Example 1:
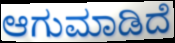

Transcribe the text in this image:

ಆಗುಮಾಡಿದೆ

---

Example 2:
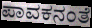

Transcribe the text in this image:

ಪಾವಕನಂತೆ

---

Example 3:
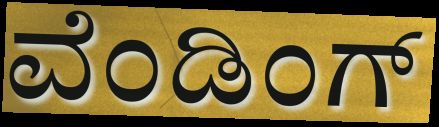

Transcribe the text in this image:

ವೆಂಡಿಂಗ್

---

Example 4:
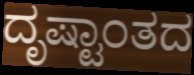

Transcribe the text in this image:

ದೃಷ್ಟಾಂತದ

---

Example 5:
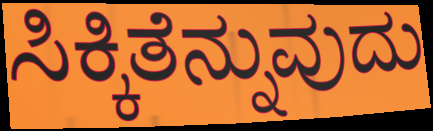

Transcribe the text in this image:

ಸಿಕ್ಕಿತೆನ್ನುವುದು